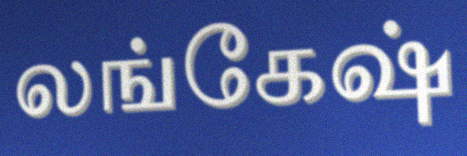
லங்கேஷ்